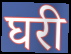
घरी